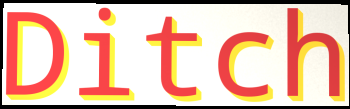
Ditch